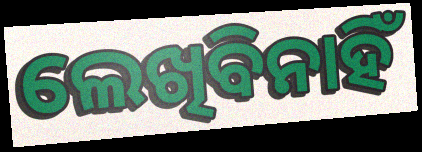
ଲେଖିବିନାହିଁ